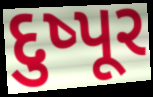
દુષ્પૂર